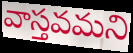
వాస్తవమని